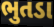
ભુતડા